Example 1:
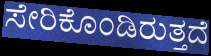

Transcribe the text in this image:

ಸೇರಿಕೊಂಡಿರುತ್ತದೆ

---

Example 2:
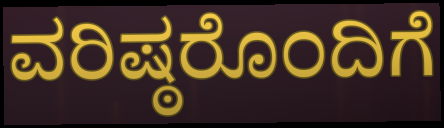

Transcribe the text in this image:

ವರಿಷ್ಠರೊಂದಿಗೆ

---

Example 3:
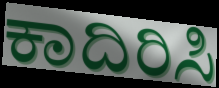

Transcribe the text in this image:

ಕಾದಿರಿಸಿ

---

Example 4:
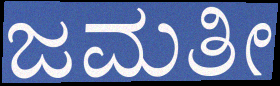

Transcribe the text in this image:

ಜಮತೀ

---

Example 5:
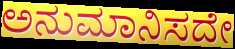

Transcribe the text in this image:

ಅನುಮಾನಿಸದೇ